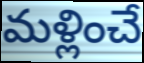
మళ్లించే